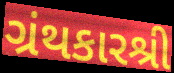
ગ્રંથકારશ્રી